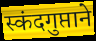
स्कंदगुप्ताने